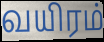
வயிரம்